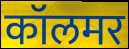
कॉलमर